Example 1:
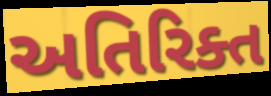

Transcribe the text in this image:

અતિરિક્ત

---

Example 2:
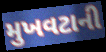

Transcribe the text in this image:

મુખવટાની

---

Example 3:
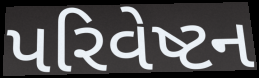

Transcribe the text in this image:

પરિવેષ્ટન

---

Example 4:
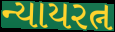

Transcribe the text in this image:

ન્યાયરત્ન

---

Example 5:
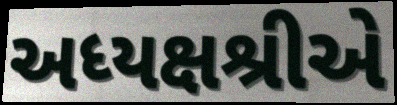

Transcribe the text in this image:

અધ્યક્ષશ્રીએ